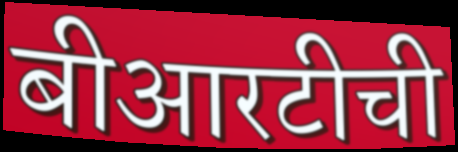
बीआरटीची